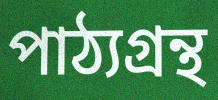
পাঠ্যগ্রন্থ